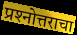
प्रश्‍नोत्तराचा